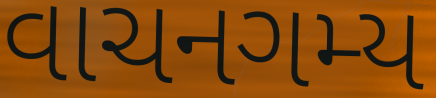
વાચનગમ્ય